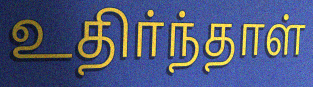
உதிர்ந்தாள்